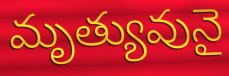
మృత్యువునై